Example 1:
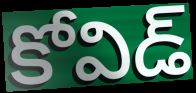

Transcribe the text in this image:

కోవిడ్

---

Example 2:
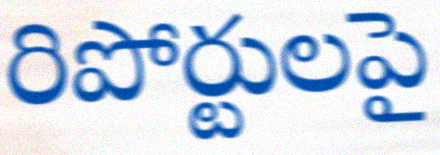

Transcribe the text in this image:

రిపోర్టులపై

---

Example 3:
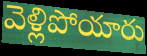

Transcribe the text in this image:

వెళ్లిపోయారు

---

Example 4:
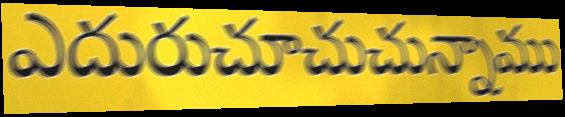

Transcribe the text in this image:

ఎదురుచూచుచున్నాము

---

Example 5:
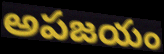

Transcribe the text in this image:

అపజయం